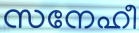
സനേഹീ